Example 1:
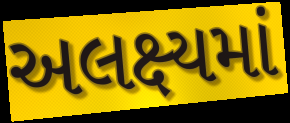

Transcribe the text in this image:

અલક્ષ્યમાં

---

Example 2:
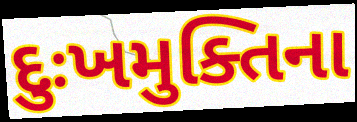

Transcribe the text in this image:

દુઃખમુક્તિના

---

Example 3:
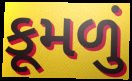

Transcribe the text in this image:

કૂમળું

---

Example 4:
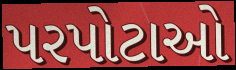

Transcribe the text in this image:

પરપોટાઓ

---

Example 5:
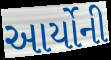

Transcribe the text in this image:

આર્યોની